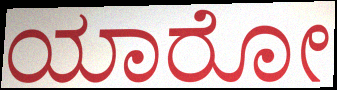
ಯಾರೋ